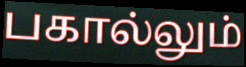
பகால்லும்